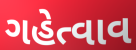
ગહેત્વાવ